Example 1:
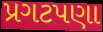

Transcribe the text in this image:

પ્રગટપણા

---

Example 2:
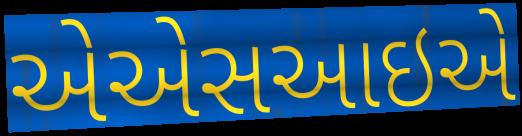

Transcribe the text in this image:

એએસઆઇએ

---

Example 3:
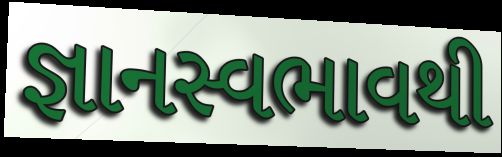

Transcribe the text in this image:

જ્ઞાનસ્વભાવથી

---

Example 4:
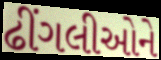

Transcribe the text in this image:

ઢીંગલીઓને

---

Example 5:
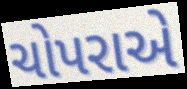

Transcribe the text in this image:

ચોપરાએ